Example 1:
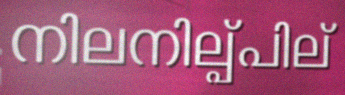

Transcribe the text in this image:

നിലനില്പ്പില്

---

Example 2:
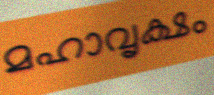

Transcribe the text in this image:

മഹാവൃക്ഷം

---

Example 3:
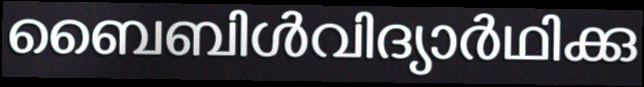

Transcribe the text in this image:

ബൈബിൾവിദ്യാർഥിക്കു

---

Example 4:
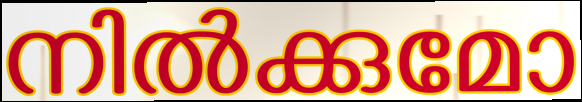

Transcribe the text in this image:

നിൽക്കുമോ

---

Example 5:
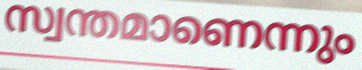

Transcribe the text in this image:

സ്വന്തമാണെന്നും